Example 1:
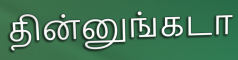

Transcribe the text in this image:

தின்னுங்கடா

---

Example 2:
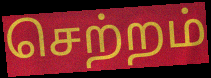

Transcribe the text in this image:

செற்றம்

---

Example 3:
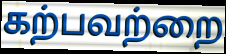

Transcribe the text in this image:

கற்பவற்றை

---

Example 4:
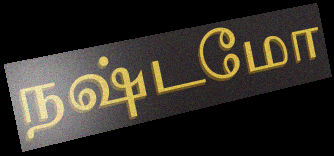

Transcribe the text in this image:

நஷ்டமோ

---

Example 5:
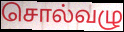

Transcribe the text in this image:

சொல்வழு